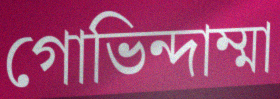
গোভিন্দাম্মা